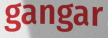
gangar